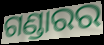
ଗଣ୍ଡାରର